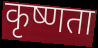
कृष्णता